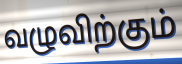
வழுவிற்கும்